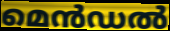
മെൻഡൽ